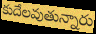
కుదేలవుతున్నారు